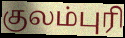
குலம்புரி